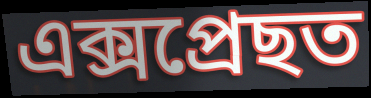
এক্সপ্ৰেছত